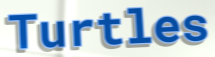
Turtles